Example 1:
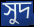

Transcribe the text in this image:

সুদ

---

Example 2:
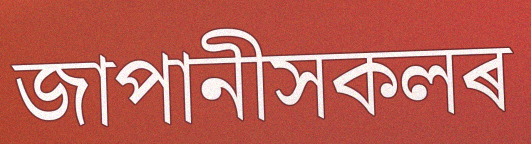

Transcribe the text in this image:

জাপানীসকলৰ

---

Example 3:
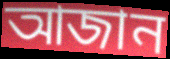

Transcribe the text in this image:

আজান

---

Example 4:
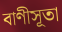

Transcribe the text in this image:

বাণীসূতা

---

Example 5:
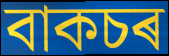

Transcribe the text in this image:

বাকচৰ